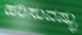
ಹರಿಸುವಷ್ಟು